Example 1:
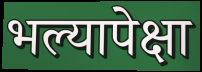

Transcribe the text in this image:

भल्यापेक्षा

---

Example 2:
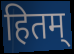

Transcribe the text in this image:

हितम्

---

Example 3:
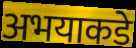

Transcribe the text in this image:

अभयाकडे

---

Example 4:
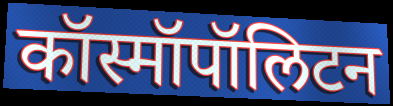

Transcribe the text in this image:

कॉस्मॉपॉलिटन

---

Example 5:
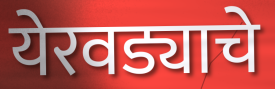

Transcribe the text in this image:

येरवड्याचे